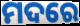
ମଦରେ